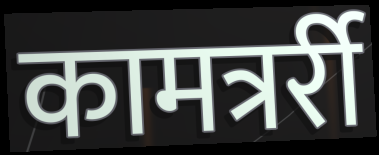
कामत्रर्री